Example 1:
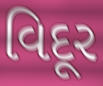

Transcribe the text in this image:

વિદૂર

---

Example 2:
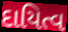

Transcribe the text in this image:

દાયિત્વ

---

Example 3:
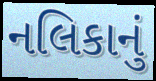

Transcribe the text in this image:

નલિકાનું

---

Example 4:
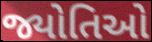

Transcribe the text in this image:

જ્યોતિઓ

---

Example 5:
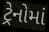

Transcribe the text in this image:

ટ્રેનોમાં